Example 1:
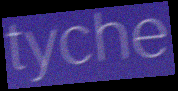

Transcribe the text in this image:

tyche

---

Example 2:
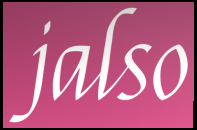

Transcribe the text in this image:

jalso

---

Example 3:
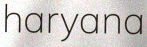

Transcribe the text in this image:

haryana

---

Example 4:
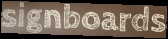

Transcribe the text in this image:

signboards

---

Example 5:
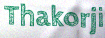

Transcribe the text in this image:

Thakorji